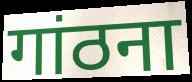
गांठना